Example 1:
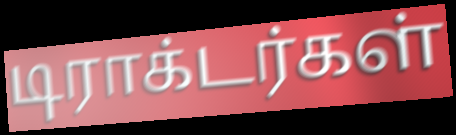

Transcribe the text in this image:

டிராக்டர்கள்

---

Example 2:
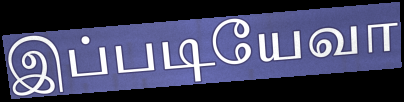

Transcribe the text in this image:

இப்படியேவா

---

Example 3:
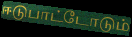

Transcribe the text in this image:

ஈடுபாட்டோடும்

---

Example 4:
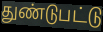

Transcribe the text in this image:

துண்டுபட்டு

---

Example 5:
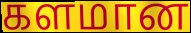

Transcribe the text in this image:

களமான